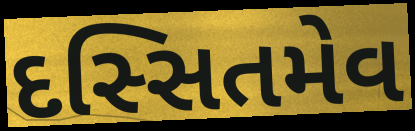
દસ્સિતમેવ